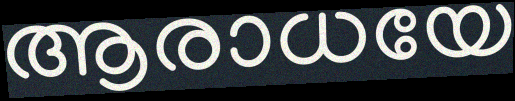
ആരാധയേ